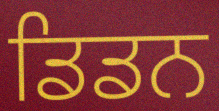
ਡਿਡਨ